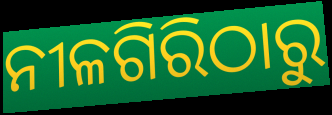
ନୀଳଗିରିଠାରୁ